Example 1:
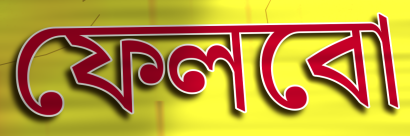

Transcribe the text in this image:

ফেলবো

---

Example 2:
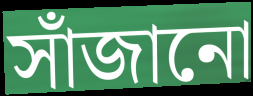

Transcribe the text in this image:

সাঁজানো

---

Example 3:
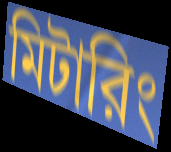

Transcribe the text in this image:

মিটারিং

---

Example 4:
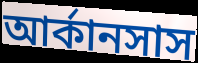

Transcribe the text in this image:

আর্কানসাস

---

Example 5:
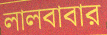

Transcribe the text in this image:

লালবাবার